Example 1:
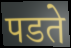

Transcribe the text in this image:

पडते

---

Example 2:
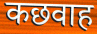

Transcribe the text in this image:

कछवाह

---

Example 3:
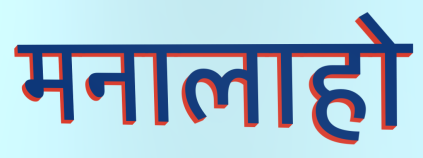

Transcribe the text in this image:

मनालाहो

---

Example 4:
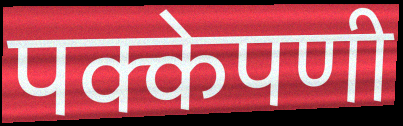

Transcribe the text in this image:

पक्केपणी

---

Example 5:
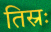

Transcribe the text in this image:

तिस्रः